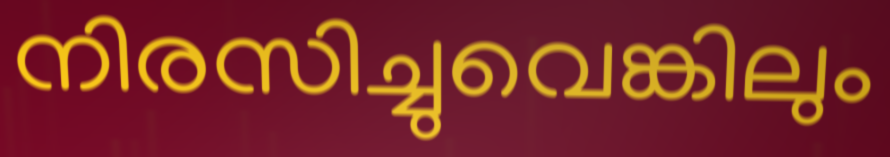
നിരസിച്ചുവെങ്കിലും